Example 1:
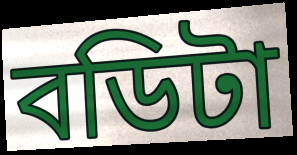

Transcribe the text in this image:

বডিটা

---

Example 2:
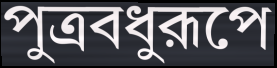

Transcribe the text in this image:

পুত্রবধুরূপে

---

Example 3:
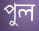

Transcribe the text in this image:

পুল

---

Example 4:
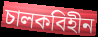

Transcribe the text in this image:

চালকবিহীন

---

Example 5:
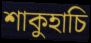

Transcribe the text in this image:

শাকুহাচি